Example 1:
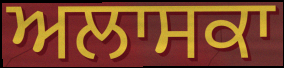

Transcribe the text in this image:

ਅਲਾਸਕਾ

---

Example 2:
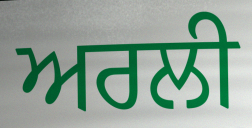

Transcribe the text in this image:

ਅਰਲੀ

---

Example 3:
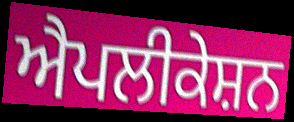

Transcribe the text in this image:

ਐਪਲੀਕੇਸ਼ਨ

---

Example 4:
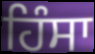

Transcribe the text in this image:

ਹਿੰਸਾ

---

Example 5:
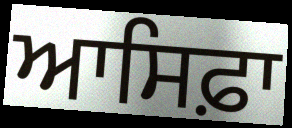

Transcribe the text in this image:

ਆਸਿਫ਼ਾ